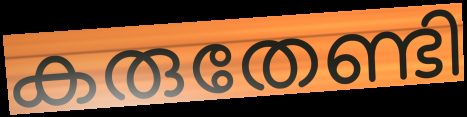
കരുതേണ്ടി